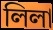
লিলা